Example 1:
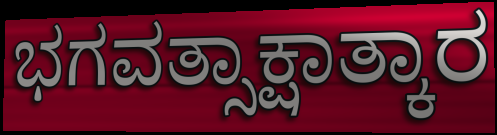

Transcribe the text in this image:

ಭಗವತ್ಸಾಕ್ಷಾತ್ಕಾರ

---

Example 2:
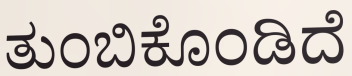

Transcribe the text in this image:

ತುಂಬಿಕೊಂಡಿದೆ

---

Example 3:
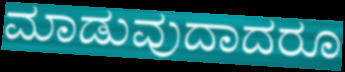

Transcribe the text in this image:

ಮಾಡುವುದಾದರೂ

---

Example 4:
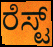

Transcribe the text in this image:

ರೆಸ್ಟ್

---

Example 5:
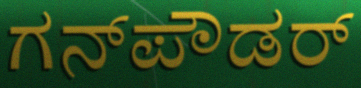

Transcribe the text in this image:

ಗನ್‌ಪೌಡರ್